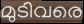
മുടിവരെ